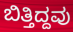
ಬಿತ್ತಿದ್ದವು